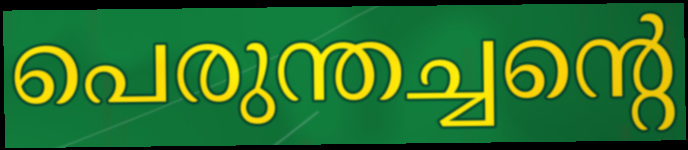
പെരുന്തച്ചന്റെ